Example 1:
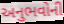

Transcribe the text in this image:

અનુભવોની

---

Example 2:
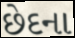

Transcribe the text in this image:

છેદના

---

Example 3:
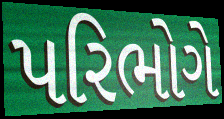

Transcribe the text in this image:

પરિભોગે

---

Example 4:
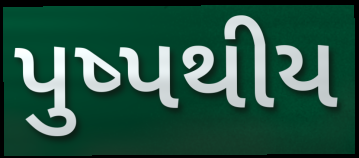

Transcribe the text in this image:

પુષ્પથીય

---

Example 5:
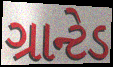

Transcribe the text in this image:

ગ્રાન્ટેડ